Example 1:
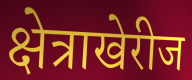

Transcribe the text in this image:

क्षेत्राखेरीज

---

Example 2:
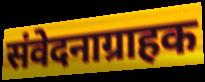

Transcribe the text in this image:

संवेदनाग्राहक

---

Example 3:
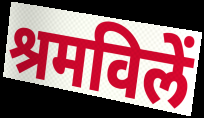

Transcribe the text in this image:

श्रमविलें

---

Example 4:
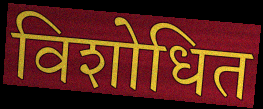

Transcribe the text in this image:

विशोधित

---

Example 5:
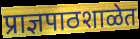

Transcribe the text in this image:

प्राज्ञपाठशाळेत